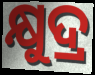
କ୍ଷୁଦ୍ର